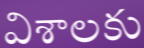
విశాలకు